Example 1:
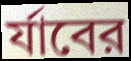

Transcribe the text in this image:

র্যাবের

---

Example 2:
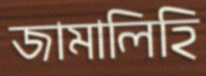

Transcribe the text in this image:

জামালিহি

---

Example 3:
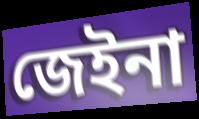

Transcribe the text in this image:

জেইনা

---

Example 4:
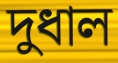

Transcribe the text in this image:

দুধাল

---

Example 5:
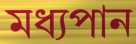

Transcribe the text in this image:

মধ্যপান